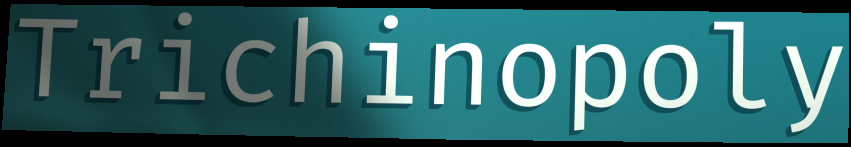
Trichinopoly